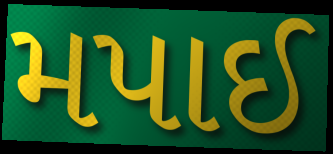
મપાઈ